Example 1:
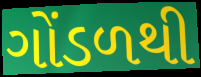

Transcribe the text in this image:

ગોંડળથી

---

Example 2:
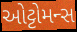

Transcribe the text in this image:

ઓટ્ટોમન્સ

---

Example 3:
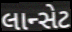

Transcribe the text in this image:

લાન્સેટ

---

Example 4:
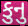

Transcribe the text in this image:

કુનુ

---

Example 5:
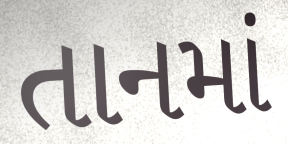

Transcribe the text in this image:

તાનમાં